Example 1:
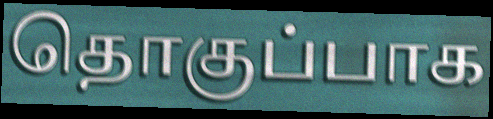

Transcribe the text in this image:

தொகுப்பாக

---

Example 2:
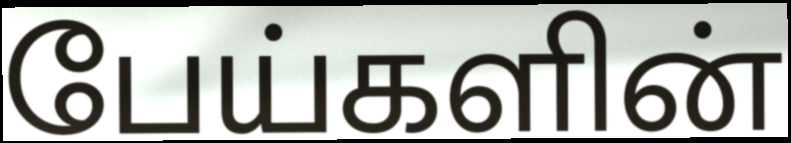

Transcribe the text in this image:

பேய்களின்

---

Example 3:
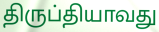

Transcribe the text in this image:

திருப்தியாவது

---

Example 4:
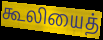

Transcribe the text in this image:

கூலியைத்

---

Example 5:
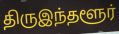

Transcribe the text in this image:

திருஇந்தளூர்